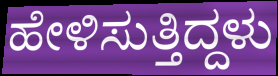
ಹೇಳಿಸುತ್ತಿದ್ದಳು